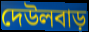
দেউলবাড়